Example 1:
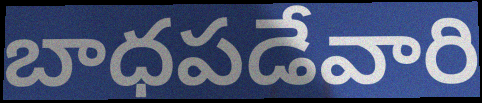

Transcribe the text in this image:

బాధపడేవారి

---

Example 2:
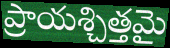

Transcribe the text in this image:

ప్రాయశ్చిత్తమై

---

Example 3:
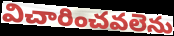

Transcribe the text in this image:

విచారించవలెను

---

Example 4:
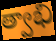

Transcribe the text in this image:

త్వాభి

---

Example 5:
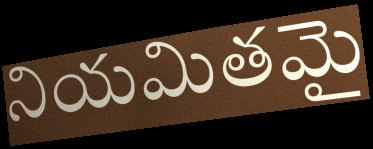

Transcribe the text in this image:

నియమితమై